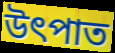
উৎপাত